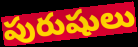
పురుషులు